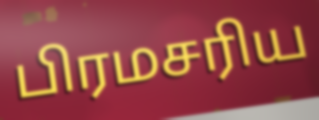
பிரமசரிய